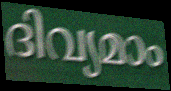
ദിവ്യമാം